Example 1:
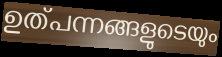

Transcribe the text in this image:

ഉത്പന്നങ്ങളുടെയും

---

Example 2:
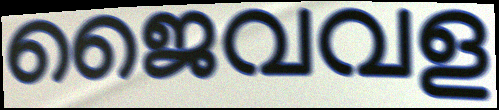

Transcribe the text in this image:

ജൈവവള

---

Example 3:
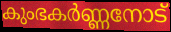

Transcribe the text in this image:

കുംഭകർണ്ണനോട്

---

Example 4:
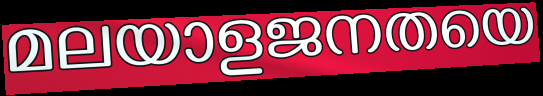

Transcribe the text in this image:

മലയാളജനതയെ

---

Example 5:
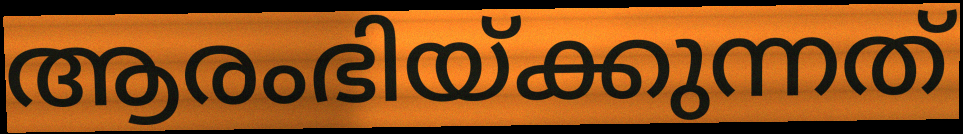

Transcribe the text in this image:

ആരംഭിയ്ക്കുന്നത്